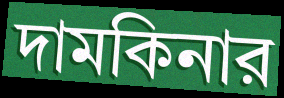
দামকিনার